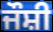
ਜੌਸ਼ੀ